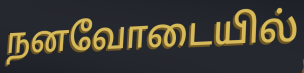
நனவோடையில்